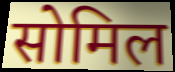
सोमिल